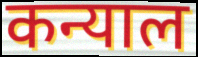
कन्याल